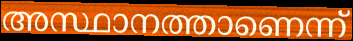
അസ്ഥാനത്താണെന്ന്